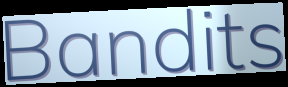
Bandits